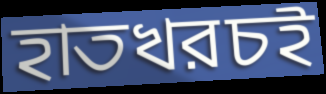
হাতখরচই